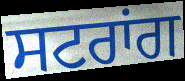
ਸਟਰਾਂਗ